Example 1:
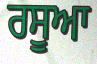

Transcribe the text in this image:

ਰਸੂਆ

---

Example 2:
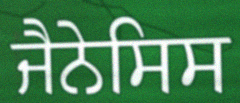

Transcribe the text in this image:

ਜੈਨੇਸਿਸ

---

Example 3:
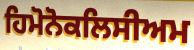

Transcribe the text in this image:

ਹਿਮੋਨੋਕਲਿਸੀਅਮ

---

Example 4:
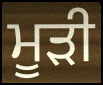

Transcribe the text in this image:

ਮੂੜੀ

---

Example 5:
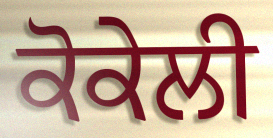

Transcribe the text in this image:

ਕੋਕੇਲੀ